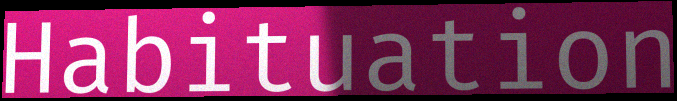
Habituation